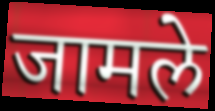
जामले